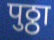
पुठ्ठा